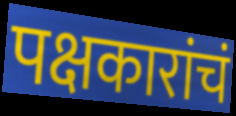
पक्षकारांचं